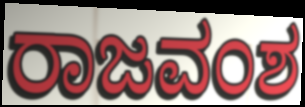
ರಾಜವಂಶ